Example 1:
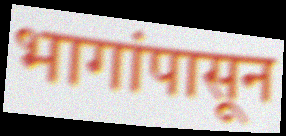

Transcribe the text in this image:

भागांपासून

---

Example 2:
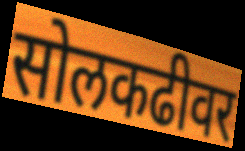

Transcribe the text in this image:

सोलकढीवर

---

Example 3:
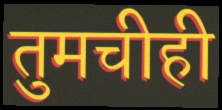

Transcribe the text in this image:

तुमचीही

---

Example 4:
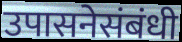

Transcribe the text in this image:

उपासनेसंबंधी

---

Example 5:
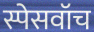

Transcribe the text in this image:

स्पेसवॉच